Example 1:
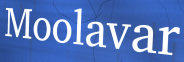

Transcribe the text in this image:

Moolavar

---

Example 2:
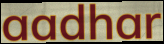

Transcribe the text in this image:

aadhar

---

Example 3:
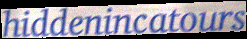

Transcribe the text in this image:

hiddenincatours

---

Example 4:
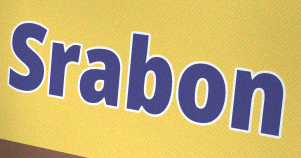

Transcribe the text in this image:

Srabon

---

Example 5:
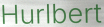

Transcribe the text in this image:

Hurlbert